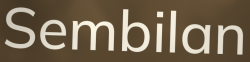
Sembilan